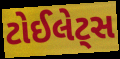
ટોઈલેટ્સ